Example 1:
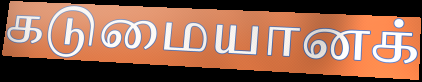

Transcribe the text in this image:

கடுமையானக்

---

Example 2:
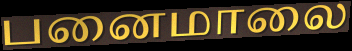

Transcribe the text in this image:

பனைமாலை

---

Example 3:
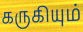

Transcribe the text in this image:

கருகியும்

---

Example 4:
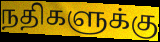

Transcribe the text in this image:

நதிகளுக்கு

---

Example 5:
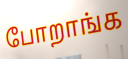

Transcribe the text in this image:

போறாங்க